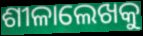
ଶୀଳାଲେଖକୁ